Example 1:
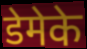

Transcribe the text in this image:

डेमेके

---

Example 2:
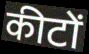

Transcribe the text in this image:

कीटों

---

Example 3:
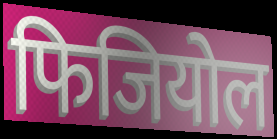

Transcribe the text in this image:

फिजियोल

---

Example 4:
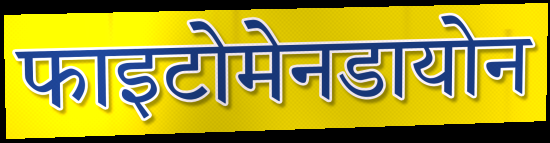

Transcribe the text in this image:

फाइटोमेनडायोन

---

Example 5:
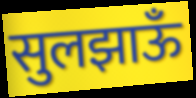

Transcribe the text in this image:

सुलझाऊँ